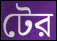
টের